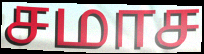
சமாச